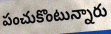
పంచుకొంటున్నారు